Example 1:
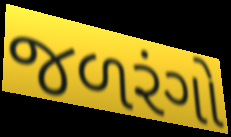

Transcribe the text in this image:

જળરંગો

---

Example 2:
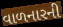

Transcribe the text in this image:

વાળનારની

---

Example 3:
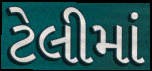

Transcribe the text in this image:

ટેલીમાં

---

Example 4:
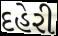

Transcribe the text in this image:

દહેરી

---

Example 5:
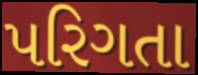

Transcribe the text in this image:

પરિગતા